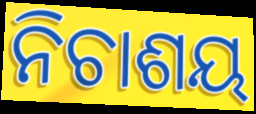
ନିଚାଶୟ